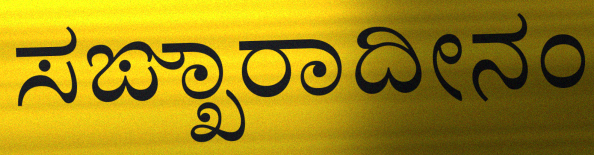
ಸಙ್ಖಾರಾದೀನಂ